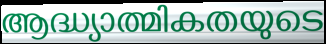
ആദ്ധ്യാത്മികതയുടെ